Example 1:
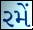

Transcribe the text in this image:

રમેં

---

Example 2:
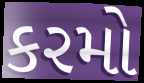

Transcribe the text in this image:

કરમો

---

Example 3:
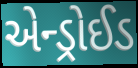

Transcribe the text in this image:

એન્ડ્રોઈડ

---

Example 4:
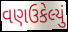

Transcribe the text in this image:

વણઉકેલ્યું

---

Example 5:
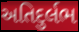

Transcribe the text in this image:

અતિદુર્લભ